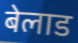
बेलाड